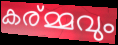
കര്മ്മവും